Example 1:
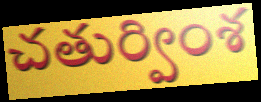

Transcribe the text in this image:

చతుర్వింశ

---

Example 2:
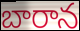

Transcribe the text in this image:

బారాన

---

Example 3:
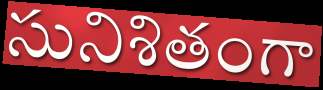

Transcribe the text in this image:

సునిశితంగా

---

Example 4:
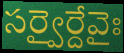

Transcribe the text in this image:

సర్వైర్దేవైః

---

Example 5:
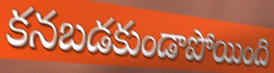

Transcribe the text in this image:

కనబడకుండాపోయింది